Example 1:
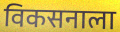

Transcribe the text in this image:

विकसनाला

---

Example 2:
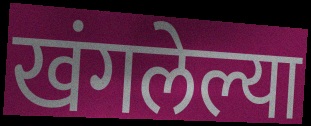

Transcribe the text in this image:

खंगलेल्या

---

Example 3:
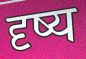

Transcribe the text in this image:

दृष्य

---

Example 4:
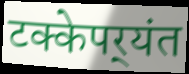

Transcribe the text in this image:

टक्केपर्यंत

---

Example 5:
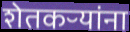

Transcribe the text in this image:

शेतकऱ्यांना